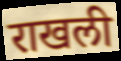
राखली